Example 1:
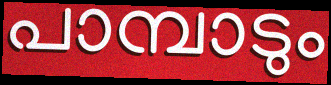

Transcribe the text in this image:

പാമ്പാടും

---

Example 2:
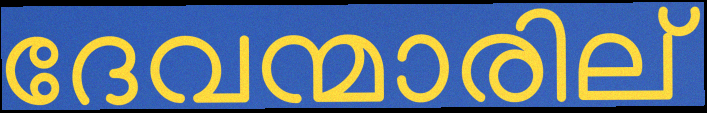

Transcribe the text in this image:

ദേവന്മാരില്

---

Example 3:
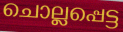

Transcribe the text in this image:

ചൊല്ലപ്പെട്ട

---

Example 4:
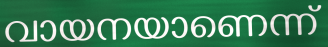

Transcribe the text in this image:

വായനയാണെന്ന്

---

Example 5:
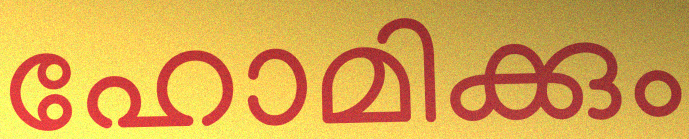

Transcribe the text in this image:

ഹോമിക്കും